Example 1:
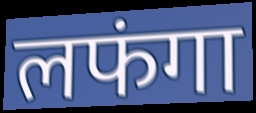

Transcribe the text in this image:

लफंगा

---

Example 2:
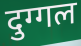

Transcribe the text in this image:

दुग्गल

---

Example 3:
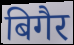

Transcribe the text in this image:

बिगैर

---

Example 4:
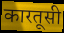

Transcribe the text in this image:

कारतूसी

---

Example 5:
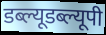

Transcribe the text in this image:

डब्ल्यूडब्ल्यूपी